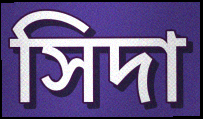
সিদা